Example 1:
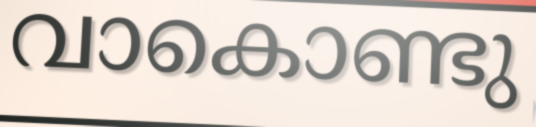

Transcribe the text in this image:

വാകൊണ്ടു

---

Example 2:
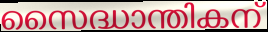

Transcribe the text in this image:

സൈദ്ധാന്തികന്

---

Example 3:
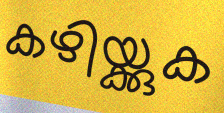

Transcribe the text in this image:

കഴിയ്ക്കുക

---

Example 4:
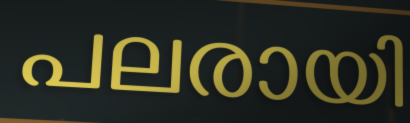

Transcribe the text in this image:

പലരായി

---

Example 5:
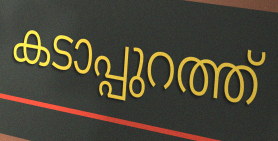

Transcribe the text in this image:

കടാപ്പുറത്ത്